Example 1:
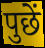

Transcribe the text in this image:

पुछें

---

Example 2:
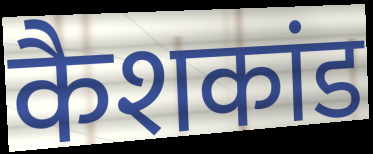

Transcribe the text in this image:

कैशकांड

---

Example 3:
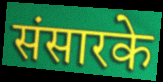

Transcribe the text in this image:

संसारके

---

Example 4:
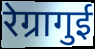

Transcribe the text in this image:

रेग्रागुई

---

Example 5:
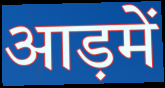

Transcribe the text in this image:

आड़में